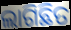
ଲାଗିଛିତ